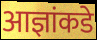
आज्ञांकडे